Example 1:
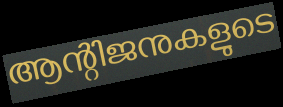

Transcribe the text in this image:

ആന്റിജനുകളുടെ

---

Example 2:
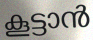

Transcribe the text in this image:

കൂട്ടാൻ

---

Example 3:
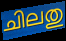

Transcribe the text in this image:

ചിലതു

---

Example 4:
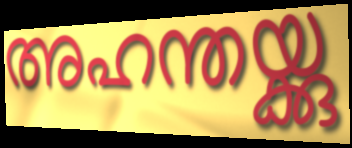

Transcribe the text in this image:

അഹന്തയ്ക്കു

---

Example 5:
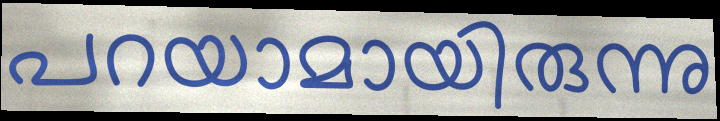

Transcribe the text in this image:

പറയാമായിരുന്നു